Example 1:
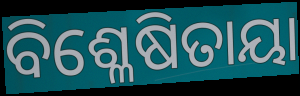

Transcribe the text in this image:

ବିଶ୍ଳେଷିତାୟା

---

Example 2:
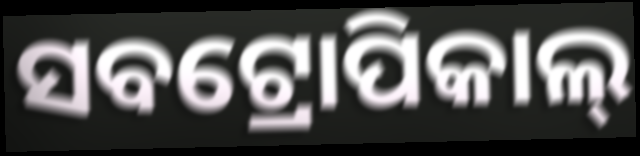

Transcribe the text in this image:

ସବଟ୍ରୋପିକାଲ୍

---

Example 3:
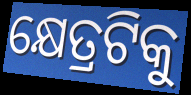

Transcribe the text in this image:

କ୍ଷେତ୍ରଟିକୁ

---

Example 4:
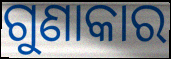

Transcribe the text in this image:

ଗୁଣାକାର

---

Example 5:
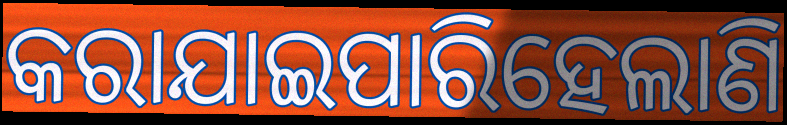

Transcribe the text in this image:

କରାଯାଇପାରିହେଲାଣି